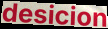
desicion